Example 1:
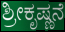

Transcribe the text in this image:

ಶ್ರೀಕೃಷ್ಣನೆ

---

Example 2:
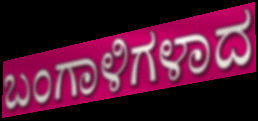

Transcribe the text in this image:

ಬಂಗಾಳಿಗಳಾದ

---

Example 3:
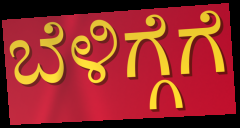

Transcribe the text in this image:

ಬೆಳಿಗ್ಗೆಗೆ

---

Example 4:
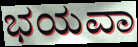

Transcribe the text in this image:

ಭಯವಾ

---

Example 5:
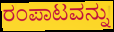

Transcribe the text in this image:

ರಂಪಾಟವನ್ನು